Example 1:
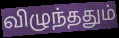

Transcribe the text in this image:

விழுந்ததும்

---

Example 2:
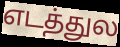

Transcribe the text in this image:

எடத்துல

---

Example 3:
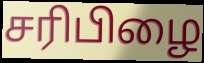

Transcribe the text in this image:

சரிபிழை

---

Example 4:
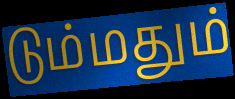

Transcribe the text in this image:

டும்மதும்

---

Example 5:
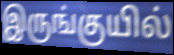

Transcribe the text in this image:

இருங்குயில்